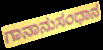
ಗಾನಾನುಸಂಧಾನ